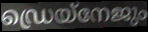
ഡ്രെയ്നേജും